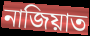
নাজিয়াত